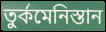
তুৰ্কমেনিস্তান